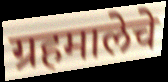
ग्रहमालेचे